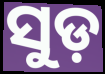
ସୁଡ଼